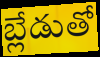
బ్లేడుతో